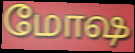
மோஷ